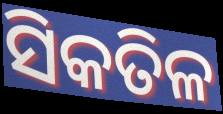
ସିକତିଳ